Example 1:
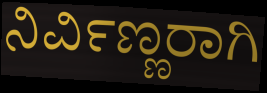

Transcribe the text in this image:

ನಿರ್ವಿಣ್ಣರಾಗಿ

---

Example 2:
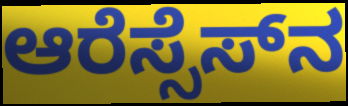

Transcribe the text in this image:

ಆರೆಸ್ಸೆಸ್‌ನ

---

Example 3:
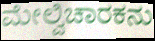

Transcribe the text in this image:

ಮೇಲ್ವಿಚಾರಕನು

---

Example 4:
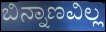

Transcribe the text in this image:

ಬಿನ್ನಾಣವಿಲ್ಲ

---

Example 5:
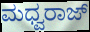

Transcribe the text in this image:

ಮಧ್ವರಾಜ್